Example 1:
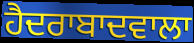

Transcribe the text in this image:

ਹੈਦਰਾਬਾਦਵਾਲਾ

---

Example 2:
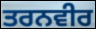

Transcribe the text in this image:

ਤਰਨਵੀਰ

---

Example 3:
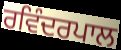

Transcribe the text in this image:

ਰਵਿੰਦਰਪਾਲ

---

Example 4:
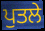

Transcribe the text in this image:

ਪੁਤਲੇ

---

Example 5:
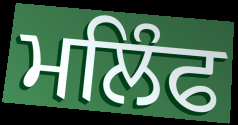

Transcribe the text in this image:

ਮਲਿੰਫ